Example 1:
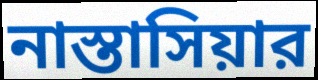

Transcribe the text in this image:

নাস্তাসিয়ার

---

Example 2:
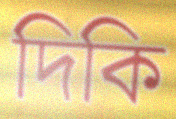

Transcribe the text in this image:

দিকি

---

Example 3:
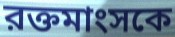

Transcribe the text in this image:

রক্তমাংসকে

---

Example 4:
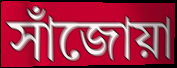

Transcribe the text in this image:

সাঁজোয়া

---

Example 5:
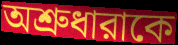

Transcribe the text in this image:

অশ্রুধারাকে